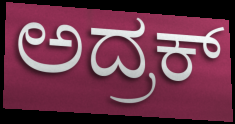
ಅದ್ರಕ್